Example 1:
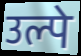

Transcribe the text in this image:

उल्पे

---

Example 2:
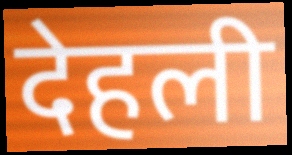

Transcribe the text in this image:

देहली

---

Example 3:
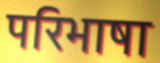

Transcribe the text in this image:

परिभाषा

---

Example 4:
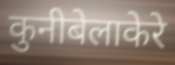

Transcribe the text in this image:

कुनीबेलाकेरे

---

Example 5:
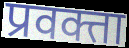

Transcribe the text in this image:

प्रवक्ता